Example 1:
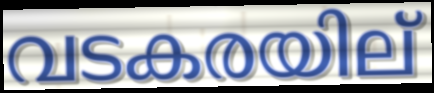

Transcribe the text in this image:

വടകരയില്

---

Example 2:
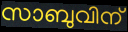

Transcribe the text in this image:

സാബുവിന്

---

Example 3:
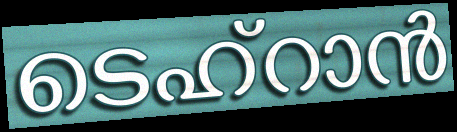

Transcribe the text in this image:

ടെഹ്റാൻ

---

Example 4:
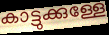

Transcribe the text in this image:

കാട്ടുക്കുള്ളേ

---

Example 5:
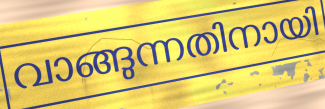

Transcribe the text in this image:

വാങ്ങുന്നതിനായി